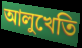
আলুখেতি